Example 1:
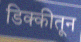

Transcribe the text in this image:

डिक्कीतून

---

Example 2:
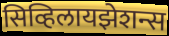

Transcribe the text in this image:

सिव्हिलायझेशन्स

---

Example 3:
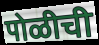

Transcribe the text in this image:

पोळीची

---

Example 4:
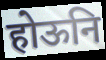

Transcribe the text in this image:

होऊनि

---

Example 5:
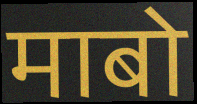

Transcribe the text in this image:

माबो